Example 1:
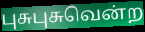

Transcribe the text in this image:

புசுபுசுவென்ற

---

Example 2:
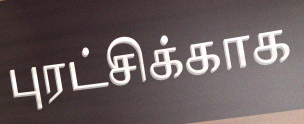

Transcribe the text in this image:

புரட்சிக்காக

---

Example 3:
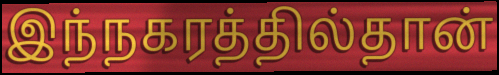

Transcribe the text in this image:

இந்நகரத்தில்தான்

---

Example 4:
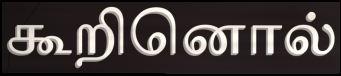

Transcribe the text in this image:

கூறினொல்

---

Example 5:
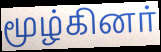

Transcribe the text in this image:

மூழ்கினர்